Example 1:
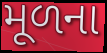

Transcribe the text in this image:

મૂળના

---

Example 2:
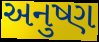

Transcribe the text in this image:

અનુષ્ણ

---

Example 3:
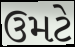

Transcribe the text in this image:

ઉમટે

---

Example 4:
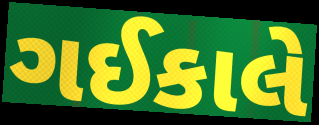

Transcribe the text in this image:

ગઈકાલે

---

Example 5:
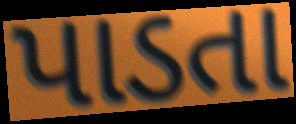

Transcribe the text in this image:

પાડતા